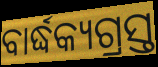
ବାର୍ଦ୍ଧକ୍ୟଗ୍ରସ୍ତ